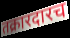
तक्रारदारच